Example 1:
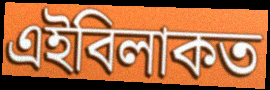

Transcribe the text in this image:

এইবিলাকত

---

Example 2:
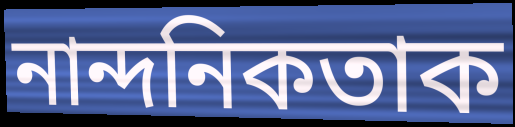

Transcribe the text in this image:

নান্দনিকতাক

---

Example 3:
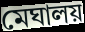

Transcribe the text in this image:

মেঘালয়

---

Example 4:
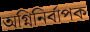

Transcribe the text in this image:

অগ্নিনিৰ্বাপক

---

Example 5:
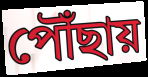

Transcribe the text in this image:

পৌঁছায়